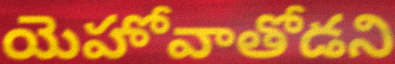
యెహోవాతోడని